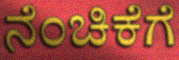
ನೆಂಚಿಕೆಗೆ